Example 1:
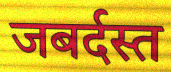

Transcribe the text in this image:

जबर्दस्त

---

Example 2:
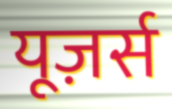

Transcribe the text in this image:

यूज़र्स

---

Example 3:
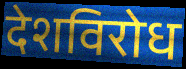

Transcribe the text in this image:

देशविरोध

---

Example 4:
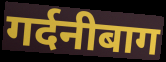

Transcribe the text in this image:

गर्दनीबाग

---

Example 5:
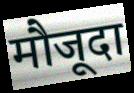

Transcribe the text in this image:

मौजूदा